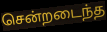
சென்றடைந்த